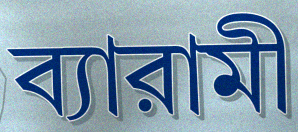
ব্যারামী